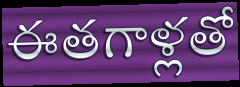
ఈతగాళ్లతో